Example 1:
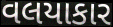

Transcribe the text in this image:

વલયાકાર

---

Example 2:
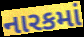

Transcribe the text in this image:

નારકમાં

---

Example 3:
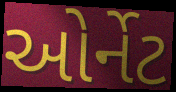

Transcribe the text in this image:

ઓર્નેટ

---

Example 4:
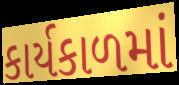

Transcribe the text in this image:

કાર્યકાળમાં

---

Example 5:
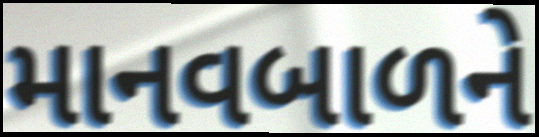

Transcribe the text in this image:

માનવબાળને